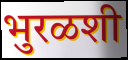
भुरळशी